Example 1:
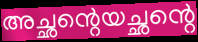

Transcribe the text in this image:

അച്ഛന്റെയച്ഛന്റെ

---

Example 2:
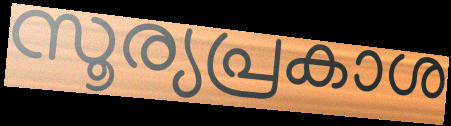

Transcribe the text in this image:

സൂര്യപ്രകാശ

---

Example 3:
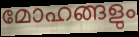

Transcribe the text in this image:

മോഹങ്ങളും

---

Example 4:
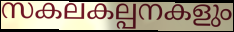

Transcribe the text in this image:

സകലകല്പനകളും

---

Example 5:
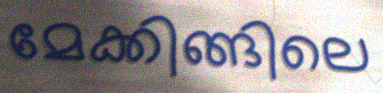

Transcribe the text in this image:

മേക്കിങ്ങിലെ